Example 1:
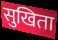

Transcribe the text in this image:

सुखिता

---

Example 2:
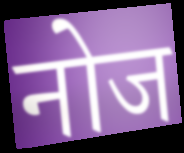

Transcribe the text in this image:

नोज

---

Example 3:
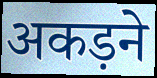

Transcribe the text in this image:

अकड़ने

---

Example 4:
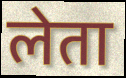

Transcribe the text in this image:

लेता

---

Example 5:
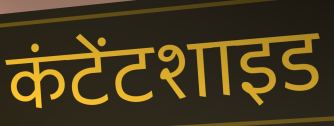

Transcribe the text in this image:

कंटेंटशाइड